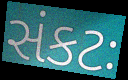
સંકટઃ